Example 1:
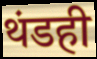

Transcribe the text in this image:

थंडही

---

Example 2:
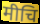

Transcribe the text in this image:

मीचि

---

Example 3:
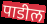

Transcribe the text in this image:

पाडील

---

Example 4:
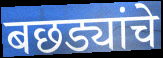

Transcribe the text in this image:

बछड्यांचे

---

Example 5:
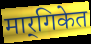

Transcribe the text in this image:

मार्गिकेत